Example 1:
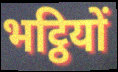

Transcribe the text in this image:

भट्ठियों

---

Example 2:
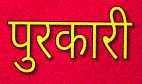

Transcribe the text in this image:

पुरकारी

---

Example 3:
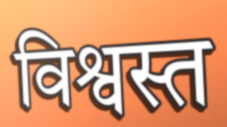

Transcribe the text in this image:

विश्वस्त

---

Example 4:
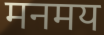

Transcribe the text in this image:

मनमय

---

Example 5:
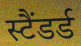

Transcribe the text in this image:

स्टैंडर्ड